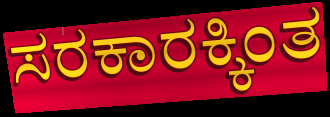
ಸರಕಾರಕ್ಕಿಂತ